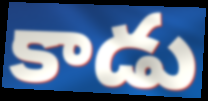
కాడు